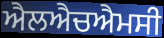
ਐਲਐਚਐਮਸੀ